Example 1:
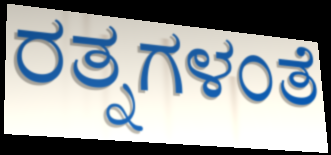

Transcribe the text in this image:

ರತ್ನಗಳಂತೆ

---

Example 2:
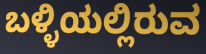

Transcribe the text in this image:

ಬಳ್ಳಿಯಲ್ಲಿರುವ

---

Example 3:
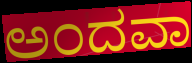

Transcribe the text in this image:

ಅಂದವಾ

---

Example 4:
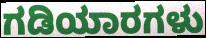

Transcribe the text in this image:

ಗಡಿಯಾರಗಳು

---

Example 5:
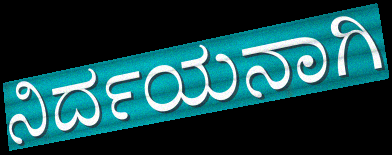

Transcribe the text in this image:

ನಿರ್ದಯನಾಗಿ